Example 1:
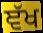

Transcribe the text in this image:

ਞੱਖ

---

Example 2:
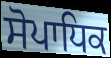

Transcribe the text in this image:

ਸੋਪਾਧਿਕ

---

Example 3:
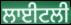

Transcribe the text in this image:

ਲਾਈਟਲੀ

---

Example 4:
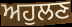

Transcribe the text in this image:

ਅਹੁਲਣ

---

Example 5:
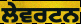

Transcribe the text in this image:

ਲੇਵਰਟਨ